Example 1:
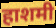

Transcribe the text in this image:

हाशमी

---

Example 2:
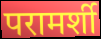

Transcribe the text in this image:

परामर्शी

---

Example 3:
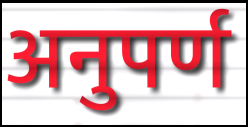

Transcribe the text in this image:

अनुपर्ण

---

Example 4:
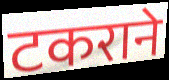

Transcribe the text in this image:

टकराने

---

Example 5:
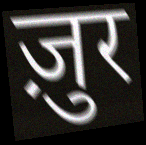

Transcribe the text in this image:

ज़ुर